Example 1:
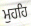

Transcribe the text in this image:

ਮੁਹਹਿ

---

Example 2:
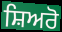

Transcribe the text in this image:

ਸ਼ਿਅਰੋ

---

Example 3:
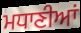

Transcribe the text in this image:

ਮਧਾਣੀਆਂ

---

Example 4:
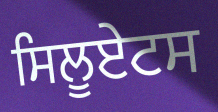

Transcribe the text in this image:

ਸਿਲੂਏਟਸ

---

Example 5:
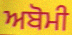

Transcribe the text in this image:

ਅਬੋਮੀ